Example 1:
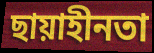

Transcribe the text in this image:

ছায়াহীনতা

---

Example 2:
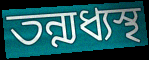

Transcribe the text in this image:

তন্মধ্যস্থ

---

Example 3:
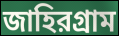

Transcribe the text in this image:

জাহিরগ্রাম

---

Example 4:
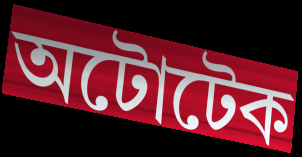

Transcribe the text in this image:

অটোটেক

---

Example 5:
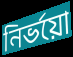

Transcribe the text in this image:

নির্ভয়ো